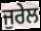
ਜੁਰੇਲ